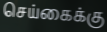
செய்கைக்கு